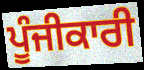
ਪੂੰਜੀਕਾਰੀ